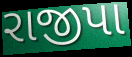
રાજીપા